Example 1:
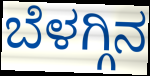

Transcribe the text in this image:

ಬೆಳಗ್ಗಿನ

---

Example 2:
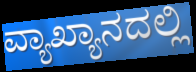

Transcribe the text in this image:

ವ್ಯಾಖ್ಯಾನದಲ್ಲಿ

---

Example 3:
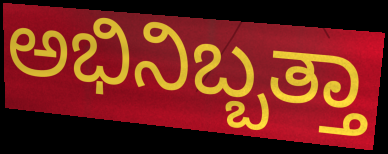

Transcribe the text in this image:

ಅಭಿನಿಬ್ಬತ್ತಾ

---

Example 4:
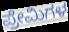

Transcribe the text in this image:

ಪ್ರೇಮಿಗಳ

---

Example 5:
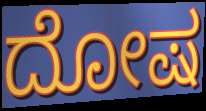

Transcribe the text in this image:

ದೋಷ